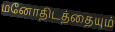
மனோதிடத்தையும்